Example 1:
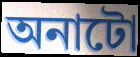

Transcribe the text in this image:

অনাটো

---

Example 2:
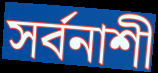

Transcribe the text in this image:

সৰ্বনাশী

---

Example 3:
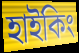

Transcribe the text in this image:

হাইকিং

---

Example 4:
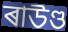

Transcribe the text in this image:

ৰাউণ্ড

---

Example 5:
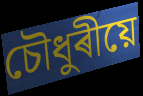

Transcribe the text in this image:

চৌধুৰীয়ে